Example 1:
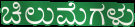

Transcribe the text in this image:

ಚಿಲುಮೆಗಳು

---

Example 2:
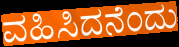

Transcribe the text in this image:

ವಹಿಸಿದನೆಂದು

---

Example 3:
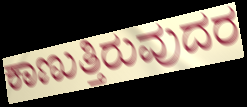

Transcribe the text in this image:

ಕಾಣುತ್ತಿರುವುದರ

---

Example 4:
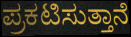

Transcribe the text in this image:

ಪ್ರಕಟಿಸುತ್ತಾನೆ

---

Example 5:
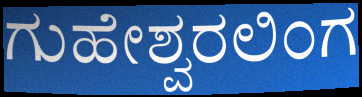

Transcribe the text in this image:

ಗುಹೇಶ್ವರಲಿಂಗ